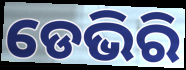
ଡେଭିରି